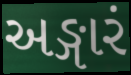
અઙ્ગારં